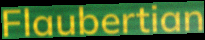
Flaubertian